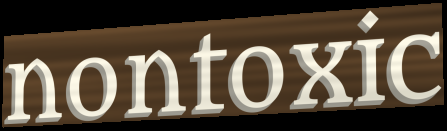
nontoxic